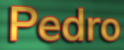
Pedro